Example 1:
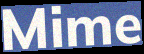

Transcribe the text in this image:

Mime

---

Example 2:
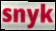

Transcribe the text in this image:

snyk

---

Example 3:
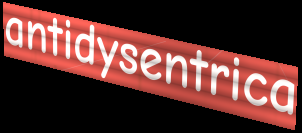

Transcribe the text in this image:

antidysentrica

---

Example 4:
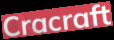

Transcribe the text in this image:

Cracraft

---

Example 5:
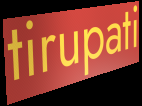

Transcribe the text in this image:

tirupati